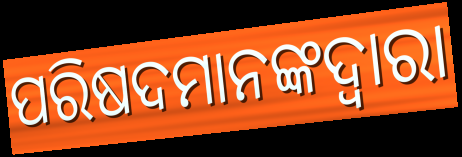
ପରିଷଦମାନଙ୍କଦ୍ୱାରା